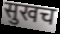
सुखच